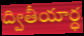
ద్వితీయార్ధ